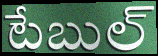
టేబుల్